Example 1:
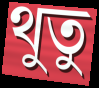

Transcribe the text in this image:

থুতু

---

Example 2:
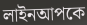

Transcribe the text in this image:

লাইনআপকে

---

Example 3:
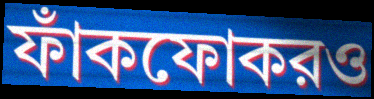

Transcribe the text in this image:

ফাঁকফোকরও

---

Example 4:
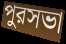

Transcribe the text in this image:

পুরসভা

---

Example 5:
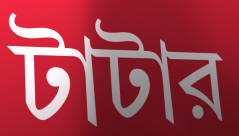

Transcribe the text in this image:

টাটার